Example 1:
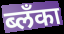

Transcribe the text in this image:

ब्लँका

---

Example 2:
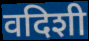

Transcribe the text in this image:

वदिशी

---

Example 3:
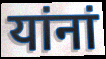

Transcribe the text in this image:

यांनां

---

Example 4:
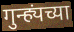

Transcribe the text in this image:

गुन्ह्यंच्या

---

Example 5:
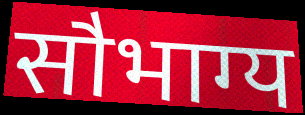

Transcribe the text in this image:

सौभाग्य